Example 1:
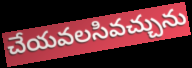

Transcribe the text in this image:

చేయవలసివచ్చును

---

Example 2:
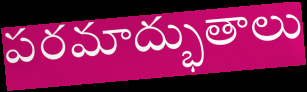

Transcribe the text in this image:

పరమాద్భుతాలు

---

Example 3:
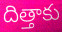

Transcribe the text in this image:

దిత్తాకు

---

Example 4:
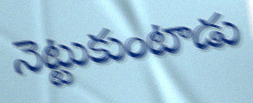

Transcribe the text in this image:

నెట్టుకుంటాడు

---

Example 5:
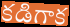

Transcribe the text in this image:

కడిగాక